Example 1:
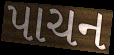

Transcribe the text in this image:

પાચન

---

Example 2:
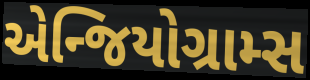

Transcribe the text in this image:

એન્જિયોગ્રામ્સ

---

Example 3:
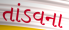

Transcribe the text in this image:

તાંડવના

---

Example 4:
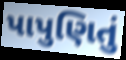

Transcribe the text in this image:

પાપુણિતું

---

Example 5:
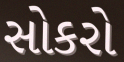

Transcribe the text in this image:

સોકરો